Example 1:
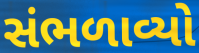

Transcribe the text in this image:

સંભળાવ્યો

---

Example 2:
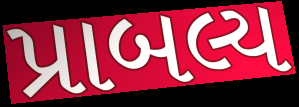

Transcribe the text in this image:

પ્રાબલ્ય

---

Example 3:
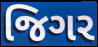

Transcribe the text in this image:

જિગર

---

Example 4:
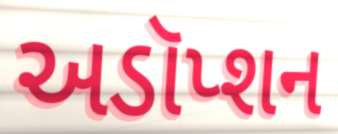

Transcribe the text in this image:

અડૉપ્શન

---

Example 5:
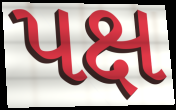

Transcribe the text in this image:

પક્ષ